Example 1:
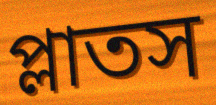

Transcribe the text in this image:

প্লাতস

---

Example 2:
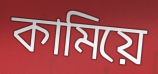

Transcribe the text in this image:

কামিয়ে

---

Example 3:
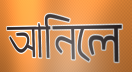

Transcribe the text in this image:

আনিলে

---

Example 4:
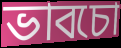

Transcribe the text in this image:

ভাবচো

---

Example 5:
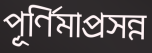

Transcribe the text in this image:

পূর্ণিমাপ্রসন্ন